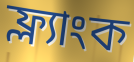
ফ্ল্যাংক